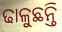
ଢାଳୁଛନ୍ତି